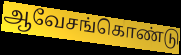
ஆவேசங்கொண்டு